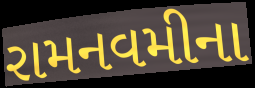
રામનવમીના